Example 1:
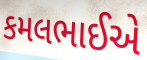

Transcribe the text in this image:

કમલભાઈએ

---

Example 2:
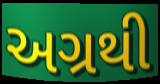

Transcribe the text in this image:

અગ્રથી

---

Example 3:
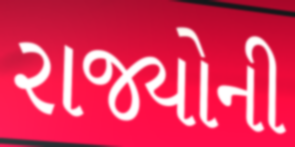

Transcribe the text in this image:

રાજ્યોની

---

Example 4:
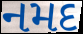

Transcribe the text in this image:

નમદ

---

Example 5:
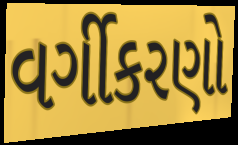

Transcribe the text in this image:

વર્ગીકરણો